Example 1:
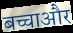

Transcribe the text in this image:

बच्चाऔर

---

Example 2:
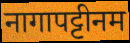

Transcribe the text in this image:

नागापट्टीनम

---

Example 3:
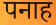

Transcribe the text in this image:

पनाह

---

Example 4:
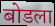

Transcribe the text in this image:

बोडला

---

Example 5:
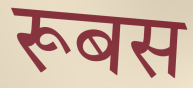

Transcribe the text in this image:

रूबस